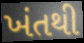
ખંતથી